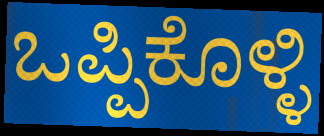
ಒಪ್ಪಿಕೊಳ್ಳಿ